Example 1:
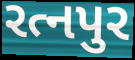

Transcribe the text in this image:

રત્નપુર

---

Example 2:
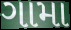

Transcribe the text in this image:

ગામા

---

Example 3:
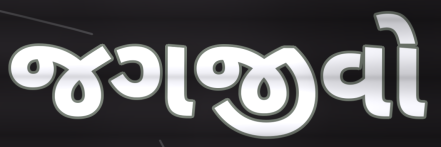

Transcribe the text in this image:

જગજીવો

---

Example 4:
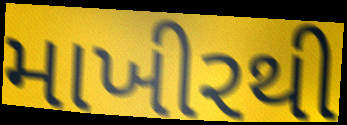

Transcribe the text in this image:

માખીરથી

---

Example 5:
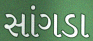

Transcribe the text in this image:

સાંગડા